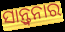
ସାନ୍ତ୍ୱନାର